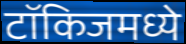
टॉकिजमध्ये